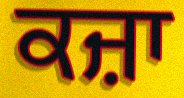
ਕਜ਼ਾ